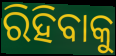
ରିହିବାକୁ